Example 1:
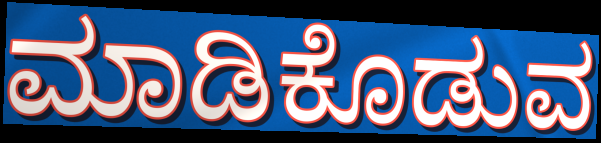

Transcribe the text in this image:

ಮಾಡಿಕೊಡುವ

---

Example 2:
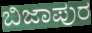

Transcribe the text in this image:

ಬಿಜಾಪುರ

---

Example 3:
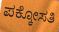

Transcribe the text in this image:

ಪಕ್ಕೋಸತಿ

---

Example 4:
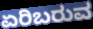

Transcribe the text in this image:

ಏರಿಬರುವ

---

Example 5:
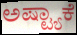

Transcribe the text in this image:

ಅಷ್ಟ್ಯಾಕೆ